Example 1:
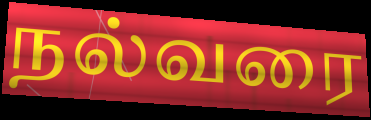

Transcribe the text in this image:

நல்வரை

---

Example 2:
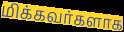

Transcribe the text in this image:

மிக்கவர்களாக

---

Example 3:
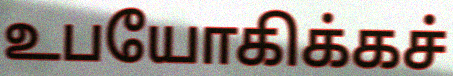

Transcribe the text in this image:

உபயோகிக்கச்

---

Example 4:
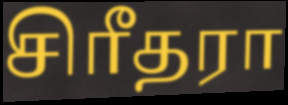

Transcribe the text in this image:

சிரீதரா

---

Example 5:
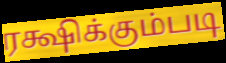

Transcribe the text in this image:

ரக்ஷிக்கும்படி